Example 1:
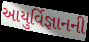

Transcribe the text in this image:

આયુર્વિજ્ઞાનની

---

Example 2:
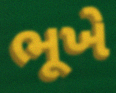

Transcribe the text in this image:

ભૂખે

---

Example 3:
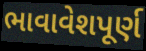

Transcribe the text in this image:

ભાવાવેશપૂર્ણ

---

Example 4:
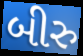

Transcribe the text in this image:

બીરુ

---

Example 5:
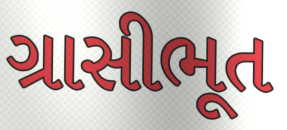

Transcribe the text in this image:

ગ્રાસીભૂત